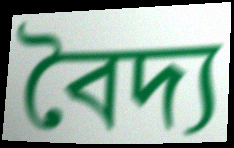
বৈদ্য